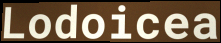
Lodoicea